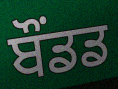
ਬੌਂਡਡ